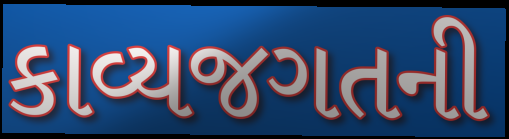
કાવ્યજગતની